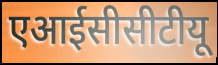
एआईसीसीटीयू